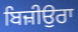
ਬਿਜ਼ੀਉਰਾ